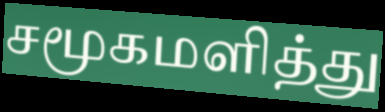
சமூகமளித்து